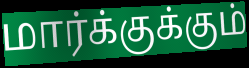
மார்க்குக்கும்